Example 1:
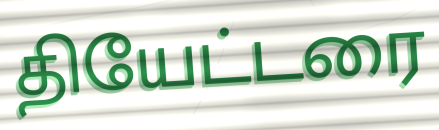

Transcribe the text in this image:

தியேட்டரை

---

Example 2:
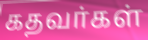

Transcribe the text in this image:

கதவர்கள்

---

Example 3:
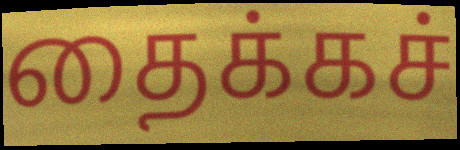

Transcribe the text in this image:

தைக்கச்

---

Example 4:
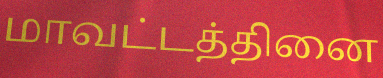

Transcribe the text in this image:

மாவட்டத்தினை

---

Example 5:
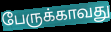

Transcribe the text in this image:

பேருக்காவது